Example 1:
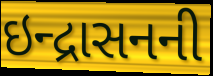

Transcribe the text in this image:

ઇન્દ્રાસનની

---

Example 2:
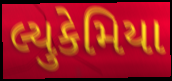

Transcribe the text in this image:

લ્યુકેમિયા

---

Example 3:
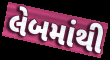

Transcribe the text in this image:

લેબમાંથી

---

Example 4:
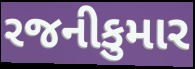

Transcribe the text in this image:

રજનીકુમાર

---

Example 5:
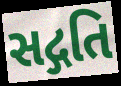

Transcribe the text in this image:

સદ્ગતિ